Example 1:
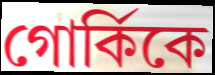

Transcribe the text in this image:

গোর্কিকে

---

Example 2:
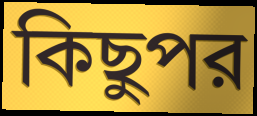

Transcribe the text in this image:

কিছুপর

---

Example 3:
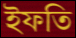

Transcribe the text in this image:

ইফতি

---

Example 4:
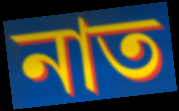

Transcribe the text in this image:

নাত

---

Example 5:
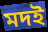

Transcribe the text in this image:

মদই